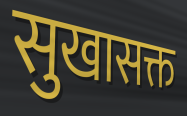
सुखासक्त